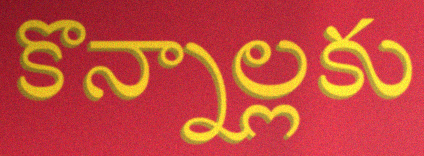
కొన్నాల్లకు